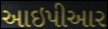
આઇપીઆર